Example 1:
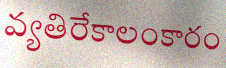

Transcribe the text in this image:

వ్యతిరేకాలంకారం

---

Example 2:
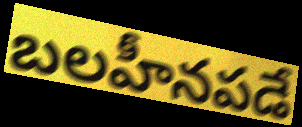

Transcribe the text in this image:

బలహీనపడే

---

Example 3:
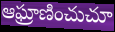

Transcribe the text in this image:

ఆఘ్రాణించుచూ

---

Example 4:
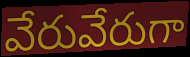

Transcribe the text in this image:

వేరువేరుగా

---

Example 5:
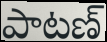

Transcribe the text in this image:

పాటణ్